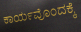
ಕಾರ್ಯವೊಂದಕ್ಕೆ